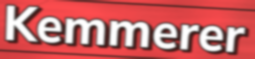
Kemmerer